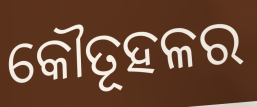
କୌତୂହଳର